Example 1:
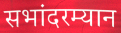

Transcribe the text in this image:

सभांदरम्यान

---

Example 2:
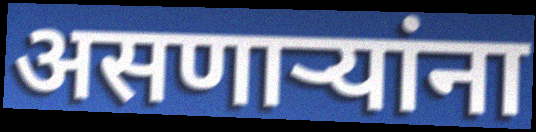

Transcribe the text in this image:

असणाऱ्यांना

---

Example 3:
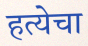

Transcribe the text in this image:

हत्येचा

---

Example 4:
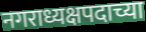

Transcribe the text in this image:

नगराध्यक्षपदाच्या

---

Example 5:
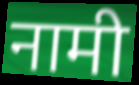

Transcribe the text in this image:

नामी